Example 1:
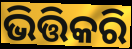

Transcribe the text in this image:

ଭିତ୍ତିକରି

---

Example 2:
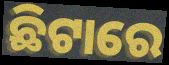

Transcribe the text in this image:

ଛିଟାରେ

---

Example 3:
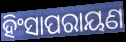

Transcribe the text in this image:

ହିଂସାପରାୟଣ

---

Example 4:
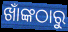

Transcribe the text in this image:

ଖାଁଙ୍କଠାରୁ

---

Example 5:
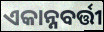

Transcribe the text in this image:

ଏକାନ୍ନବର୍ତ୍ତୀ